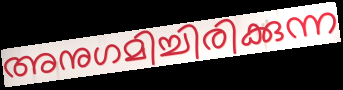
അനുഗമിച്ചിരിക്കുന്ന